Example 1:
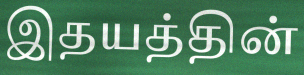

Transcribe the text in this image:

இதயத்தின்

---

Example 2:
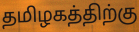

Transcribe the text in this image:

தமிழகத்திற்கு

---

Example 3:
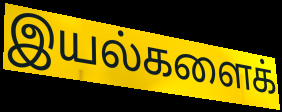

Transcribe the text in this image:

இயல்களைக்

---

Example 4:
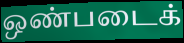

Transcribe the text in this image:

ஒண்படைக்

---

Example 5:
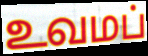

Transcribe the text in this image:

உவமப்